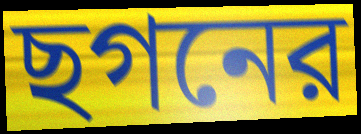
ছগনের